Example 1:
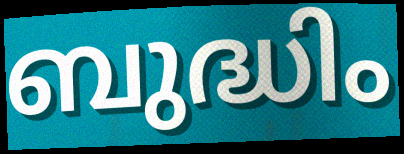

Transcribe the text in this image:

ബുദ്ധിം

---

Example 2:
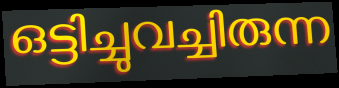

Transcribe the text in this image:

ഒട്ടിച്ചുവച്ചിരുന്ന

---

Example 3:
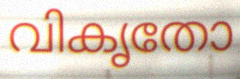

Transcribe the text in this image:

വികൃതോ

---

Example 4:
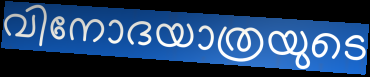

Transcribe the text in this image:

വിനോദയാത്രയുടെ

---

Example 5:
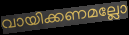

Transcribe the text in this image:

വായിക്കണമല്ലോ